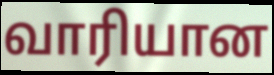
வாரியான